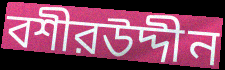
বশীরউদ্দীন